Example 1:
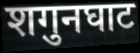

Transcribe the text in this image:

शगुनघाट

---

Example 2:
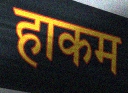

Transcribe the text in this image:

हाकम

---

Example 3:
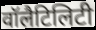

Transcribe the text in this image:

वॉलैटिलिटी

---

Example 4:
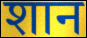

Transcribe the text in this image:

शान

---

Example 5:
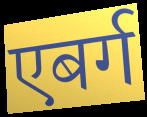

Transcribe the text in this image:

एबर्ग